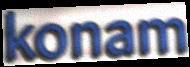
konam